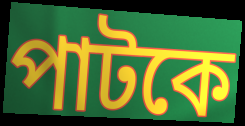
পাটকে